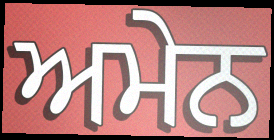
ਅਮੇਨ